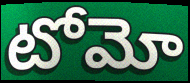
టోమో